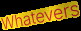
Whatevers